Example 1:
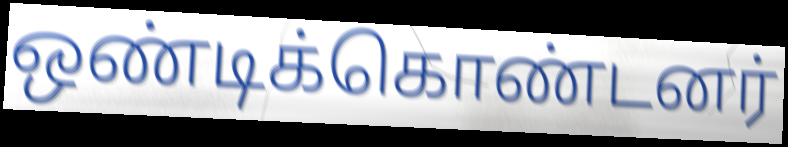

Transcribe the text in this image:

ஒண்டிக்கொண்டனர்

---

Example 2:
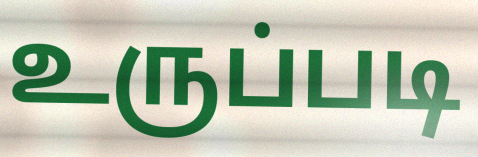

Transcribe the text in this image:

உருப்படி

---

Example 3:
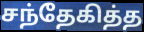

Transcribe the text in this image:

சந்தேகித்த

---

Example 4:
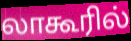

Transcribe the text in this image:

லாகூரில்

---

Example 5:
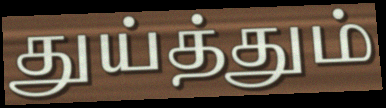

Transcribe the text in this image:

துய்த்தும்